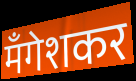
मँगेशकर